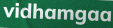
vidhamgaa